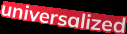
universalized